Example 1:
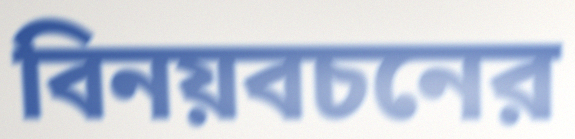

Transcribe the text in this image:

বিনয়বচনের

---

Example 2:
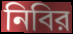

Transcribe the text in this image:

নিবির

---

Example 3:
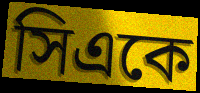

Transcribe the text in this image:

সিএকে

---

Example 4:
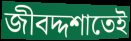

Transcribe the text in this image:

জীবদ্দশাতেই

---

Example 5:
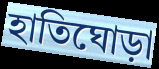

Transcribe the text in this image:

হাতিঘোড়া